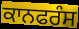
ਕਾਨਫਰੰਸ